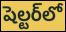
షెల్టర్‌లో